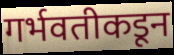
गर्भवतीकडून